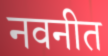
नवनीत